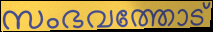
സംഭവത്തോട്